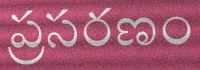
ప్రసరణం